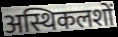
अस्थिकलशों